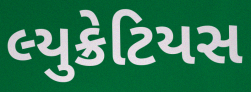
લ્યુક્રેટિયસ